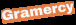
Gramercy